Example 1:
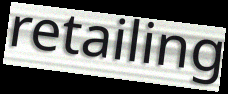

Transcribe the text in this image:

retailing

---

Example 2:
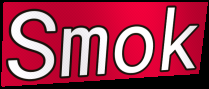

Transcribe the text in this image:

Smok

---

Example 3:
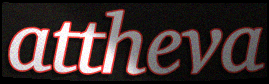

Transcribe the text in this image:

attheva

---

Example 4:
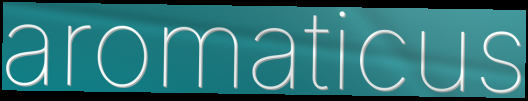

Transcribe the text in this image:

aromaticus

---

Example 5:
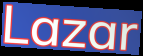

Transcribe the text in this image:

Lazar